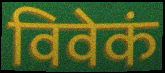
विवेकं